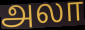
அலா